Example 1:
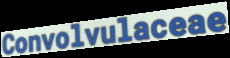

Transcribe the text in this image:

Convolvulaceae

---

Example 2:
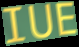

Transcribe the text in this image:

IUE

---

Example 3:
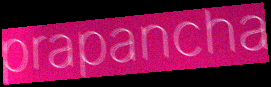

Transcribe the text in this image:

prapancha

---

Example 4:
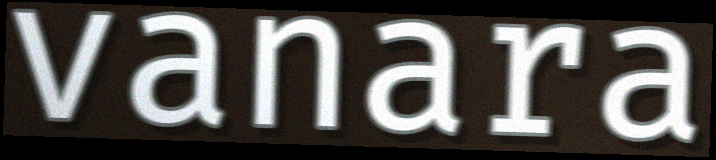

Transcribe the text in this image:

vanara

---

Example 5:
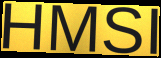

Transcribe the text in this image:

HMSI